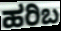
ಹರಿಬ